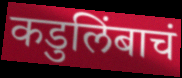
कडुलिंबाचं